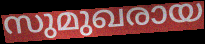
സുമുഖരായ